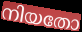
നിയതോ